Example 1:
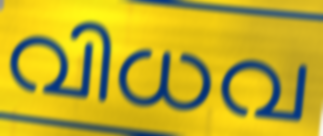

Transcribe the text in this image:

വിധവ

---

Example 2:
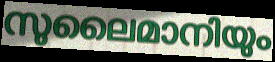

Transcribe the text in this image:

സുലൈമാനിയും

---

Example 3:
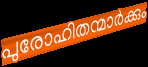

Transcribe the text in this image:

പുരോഹിതന്മാർക്കും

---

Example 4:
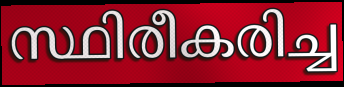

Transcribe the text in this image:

സ്ഥിരീകരിച്ച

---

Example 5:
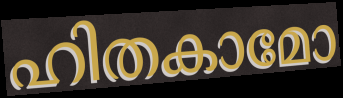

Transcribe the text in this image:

ഹിതകാമോ